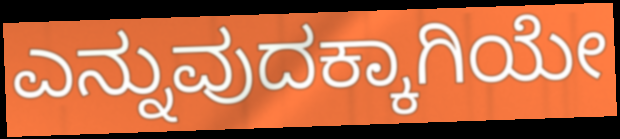
ಎನ್ನುವುದಕ್ಕಾಗಿಯೇ